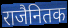
राजैनितक